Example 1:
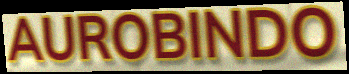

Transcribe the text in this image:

AUROBINDO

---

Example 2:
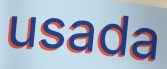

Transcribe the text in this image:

usada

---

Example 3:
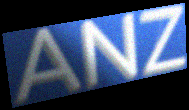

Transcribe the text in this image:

ANZ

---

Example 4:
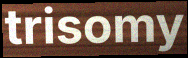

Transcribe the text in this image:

trisomy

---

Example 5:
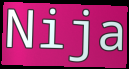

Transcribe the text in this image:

Nija